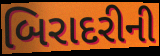
બિરાદરીની